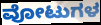
ವೋಟುಗಳ